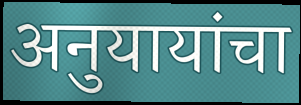
अनुयायांचा